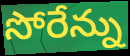
సోరేన్ను